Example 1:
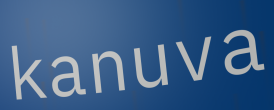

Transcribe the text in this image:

kanuva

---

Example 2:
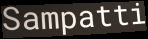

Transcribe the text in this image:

Sampatti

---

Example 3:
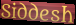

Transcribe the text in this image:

Siddesh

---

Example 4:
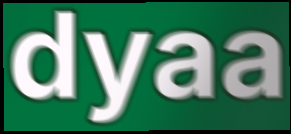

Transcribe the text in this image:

dyaa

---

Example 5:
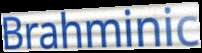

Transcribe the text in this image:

Brahminic